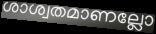
ശാശ്വതമാണല്ലോ